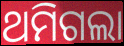
ଥମିଗଲା